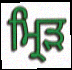
ਮ੍ਰਿੜ